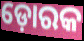
ଡ଼ୋରକ